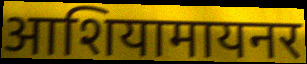
आशियामायनर